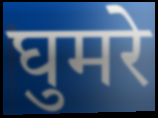
घुमरे